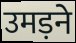
उमड़ने